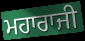
ਮਹਾਰਾਜੀ